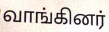
வாங்கினர்